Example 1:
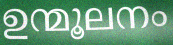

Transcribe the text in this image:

ഉന്മൂലനം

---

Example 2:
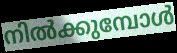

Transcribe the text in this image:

നിൽക്കുമ്പോൾ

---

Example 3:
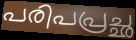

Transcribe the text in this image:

പരിപപ്രച്ഛ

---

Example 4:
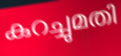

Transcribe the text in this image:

കുറച്ചുമതി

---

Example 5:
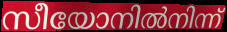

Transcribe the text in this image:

സീയോനിൽനിന്ന്